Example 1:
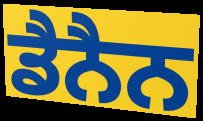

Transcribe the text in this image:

ਡੈਨੈਨ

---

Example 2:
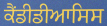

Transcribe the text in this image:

ਕੈਂਡੀਡੀਆਸਿਸ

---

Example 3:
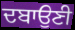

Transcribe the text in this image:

ਦਬਾਉਣੀ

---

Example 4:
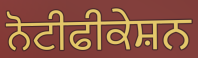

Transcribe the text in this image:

ਨੋਟੀਫੀਕੇਸ਼ਨ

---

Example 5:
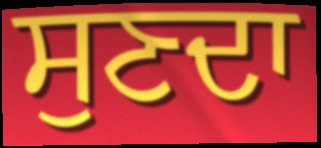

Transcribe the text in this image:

ਸੁਣਦਾ